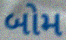
બોમ